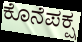
ಕೊನೆಪಕ್ಷ